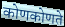
कोणकोणते